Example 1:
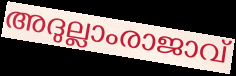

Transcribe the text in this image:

അദുല്ലാംരാജാവ്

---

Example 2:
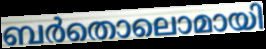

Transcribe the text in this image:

ബർതൊലൊമായി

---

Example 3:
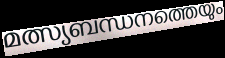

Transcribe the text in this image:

മത്സ്യബന്ധനത്തെയും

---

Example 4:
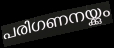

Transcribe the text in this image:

പരിഗണനയ്ക്കും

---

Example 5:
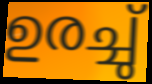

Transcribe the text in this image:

ഉരച്ചു്